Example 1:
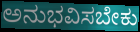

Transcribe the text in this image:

ಅನುಭವಿಸಬೇಕು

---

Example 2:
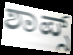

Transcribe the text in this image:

ಶಾಪ್ಸ್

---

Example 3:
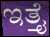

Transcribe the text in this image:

ಇತ್ತೈ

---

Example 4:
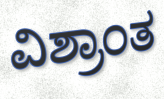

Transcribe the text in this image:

ವಿಶ್ರಾಂತ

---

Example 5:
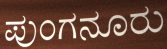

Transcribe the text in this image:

ಪುಂಗನೂರು